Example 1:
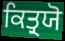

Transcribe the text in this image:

ਕਿਤ੍ਰਯੋ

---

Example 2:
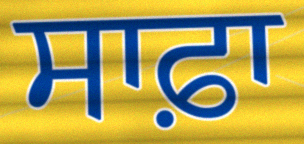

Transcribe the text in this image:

ਸਾਫ਼ਾ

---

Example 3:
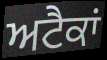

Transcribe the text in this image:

ਅਟੈਕਾਂ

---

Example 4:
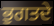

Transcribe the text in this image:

ਭੁਗਤਦੇ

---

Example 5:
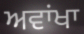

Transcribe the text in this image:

ਅਵਾਂਖਾ